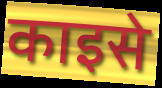
काइसे